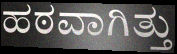
ಹಠವಾಗಿತ್ತು